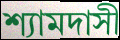
শ্যামদাসী